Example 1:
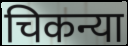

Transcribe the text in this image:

चिकन्या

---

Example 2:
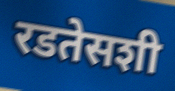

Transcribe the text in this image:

रडतेसशी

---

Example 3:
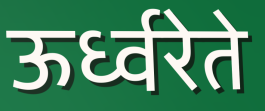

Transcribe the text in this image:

ऊर्ध्वरेते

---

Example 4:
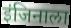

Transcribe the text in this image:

इंजिनाला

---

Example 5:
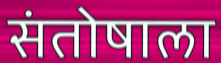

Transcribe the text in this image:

संतोषाला